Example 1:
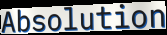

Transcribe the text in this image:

Absolution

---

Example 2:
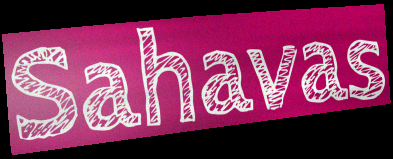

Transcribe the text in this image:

Sahavas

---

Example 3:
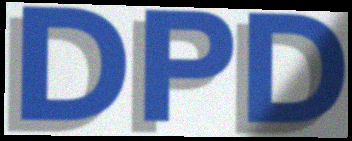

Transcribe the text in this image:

DPD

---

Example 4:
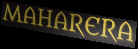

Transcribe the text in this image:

MAHARERA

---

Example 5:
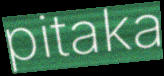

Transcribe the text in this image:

pitaka